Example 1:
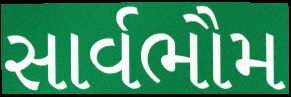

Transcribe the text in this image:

સાર્વભૌમ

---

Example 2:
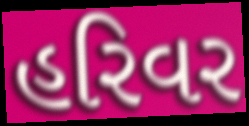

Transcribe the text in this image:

હરિવર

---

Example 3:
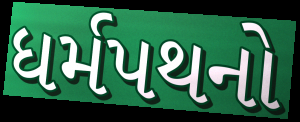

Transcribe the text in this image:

ધર્મપથનો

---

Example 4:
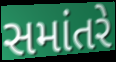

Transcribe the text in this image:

સમાંતરે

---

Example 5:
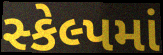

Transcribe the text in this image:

સ્કેલ્પમાં